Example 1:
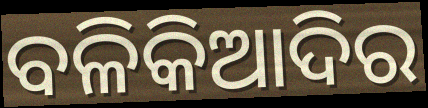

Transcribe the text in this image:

ବଳିକିଆଦିର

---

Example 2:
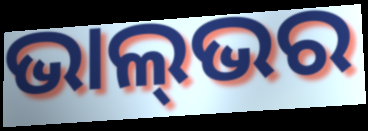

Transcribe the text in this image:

ଭାଲ୍‌ଭର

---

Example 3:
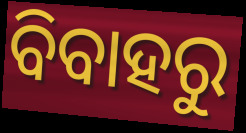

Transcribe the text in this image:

ବିବାହରୁ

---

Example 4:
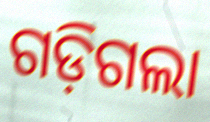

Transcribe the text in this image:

ଗଡ଼ିଗଲା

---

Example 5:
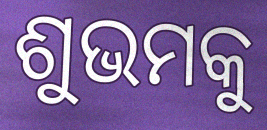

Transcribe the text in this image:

ଶୁଭମକୁ